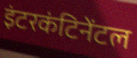
इंटरकंटिनेंटल